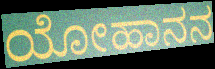
ಯೋಹಾನನ